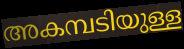
അകമ്പടിയുള്ള